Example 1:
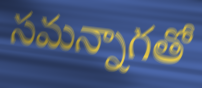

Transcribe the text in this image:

సమన్నాగతో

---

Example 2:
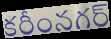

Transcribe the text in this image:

కరీంనగర్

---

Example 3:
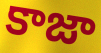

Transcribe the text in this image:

కాజా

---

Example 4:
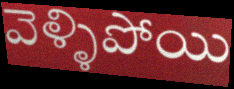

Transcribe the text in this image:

వెళ్ళిపోయి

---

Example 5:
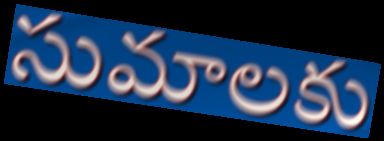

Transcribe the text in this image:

సుమాలకు